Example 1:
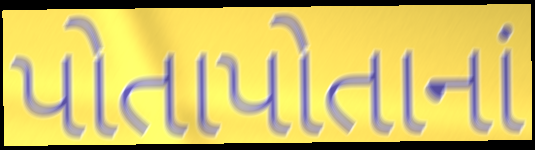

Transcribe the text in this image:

પોતાપોતાનાં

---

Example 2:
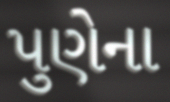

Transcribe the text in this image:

પુણેના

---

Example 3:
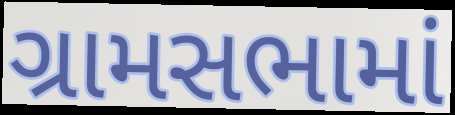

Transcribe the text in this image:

ગ્રામસભામાં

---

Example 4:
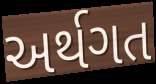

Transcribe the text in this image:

અર્થગત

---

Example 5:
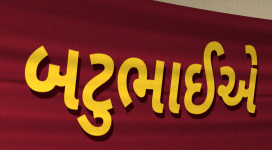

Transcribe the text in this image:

બટુભાઈએ